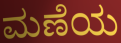
ಮಣೆಯ